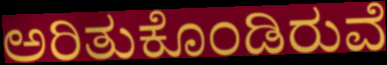
ಅರಿತುಕೊಂಡಿರುವೆ